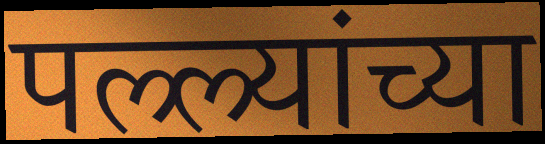
पल्ल्यांच्या